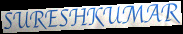
SURESHKUMAR